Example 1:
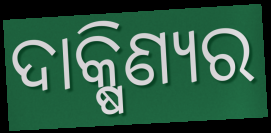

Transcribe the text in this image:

ଦାକ୍ଷିଣ୍ୟର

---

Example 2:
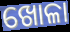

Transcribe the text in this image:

ଖୋଳା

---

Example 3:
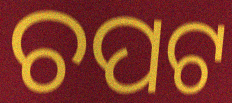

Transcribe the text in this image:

ଚପଟ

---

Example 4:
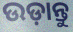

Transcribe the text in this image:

ଉଡ଼ାନ୍ତୁ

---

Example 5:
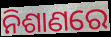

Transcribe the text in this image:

ନିଶାଣରେ